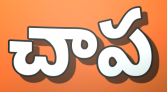
చాప